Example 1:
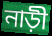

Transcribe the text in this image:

নাড়ী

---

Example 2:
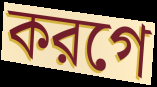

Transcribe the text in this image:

করগে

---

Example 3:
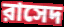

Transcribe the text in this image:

রাসেদ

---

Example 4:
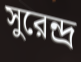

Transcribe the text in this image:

সুরেন্দ্র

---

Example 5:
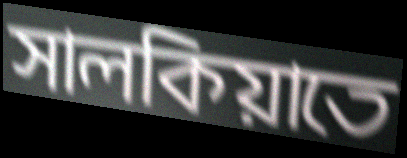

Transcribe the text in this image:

সালকিয়াতে